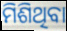
ମିଶିଥିବା